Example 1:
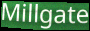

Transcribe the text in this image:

Millgate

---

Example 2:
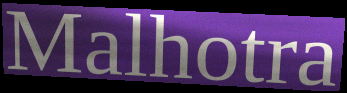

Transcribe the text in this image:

Malhotra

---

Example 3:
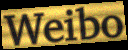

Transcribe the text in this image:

Weibo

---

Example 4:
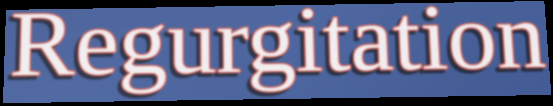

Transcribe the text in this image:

Regurgitation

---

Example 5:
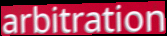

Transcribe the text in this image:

arbitration